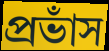
প্রভাঁস